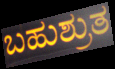
ಬಹುಶ್ರುತ